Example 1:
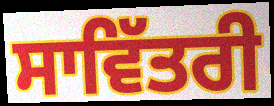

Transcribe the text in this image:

ਸਾਵਿੱਤਰੀ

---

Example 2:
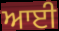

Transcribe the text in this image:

ਆਈ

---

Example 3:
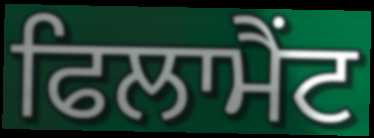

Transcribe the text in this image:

ਫਿਲਾਮੈਂਟ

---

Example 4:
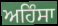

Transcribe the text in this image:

ਅਹਿੰਸਾ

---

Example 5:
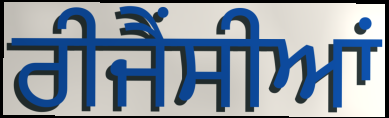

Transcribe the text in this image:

ਰੀਜੈਂਸੀਆਂ